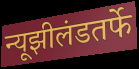
न्यूझीलंडतर्फे